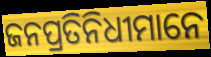
ଜନପ୍ରତିନିଧୀମାନେ